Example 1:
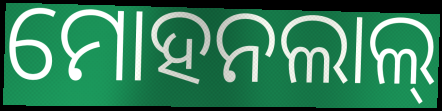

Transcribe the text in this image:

ମୋହନଲାଲ୍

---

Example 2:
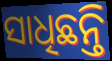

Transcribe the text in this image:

ସାଧିଛନ୍ତି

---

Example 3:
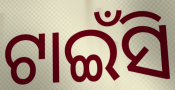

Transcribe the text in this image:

ଟାଇଁସି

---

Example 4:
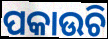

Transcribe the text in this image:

ପକାଉଚି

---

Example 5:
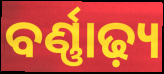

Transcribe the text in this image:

ବର୍ଣ୍ଣାଢ଼୍ୟ